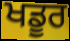
ਖਡੂਰ